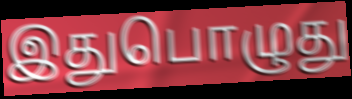
இதுபொழுது